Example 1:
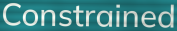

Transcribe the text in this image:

Constrained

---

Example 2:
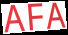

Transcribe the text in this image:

AFA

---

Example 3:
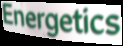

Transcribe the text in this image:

Energetics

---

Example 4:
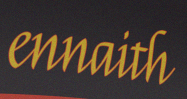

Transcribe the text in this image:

ennaith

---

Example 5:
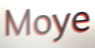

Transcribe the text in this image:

Moye